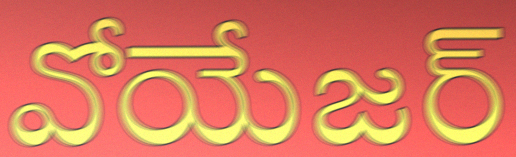
వోయేజర్